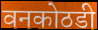
वनकोठडी